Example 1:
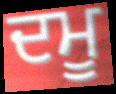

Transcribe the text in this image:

ਦਮੂ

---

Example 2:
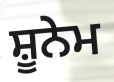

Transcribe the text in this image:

ਸ਼ੂਨੇਮ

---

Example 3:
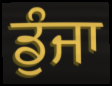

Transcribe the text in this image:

ਡੁੰਜਾ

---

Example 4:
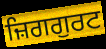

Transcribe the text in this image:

ਜ਼ਿਗਗੁਰਟ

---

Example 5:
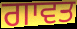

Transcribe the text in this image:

ਗਾਵਤ